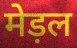
मेड़ल